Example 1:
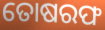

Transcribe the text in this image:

ତୋଷରଫ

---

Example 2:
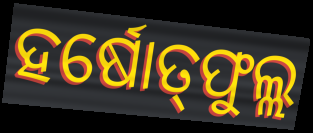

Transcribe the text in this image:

ହର୍ଷୋତ୍‌ଫୁଲ୍ଲ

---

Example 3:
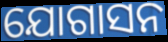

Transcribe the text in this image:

ଯୋଗାସନ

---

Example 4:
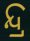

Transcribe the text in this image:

ନ୍ଦ୍ର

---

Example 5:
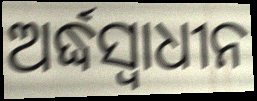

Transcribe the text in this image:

ଅର୍ଦ୍ଧସ୍ୱାଧୀନ